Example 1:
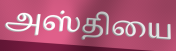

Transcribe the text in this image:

அஸ்தியை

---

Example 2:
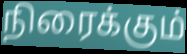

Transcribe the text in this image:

நிரைக்கும்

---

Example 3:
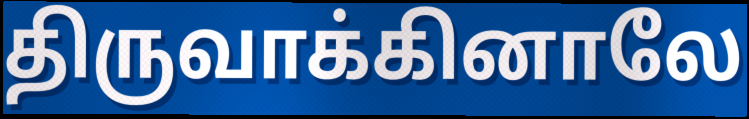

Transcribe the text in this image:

திருவாக்கினாலே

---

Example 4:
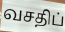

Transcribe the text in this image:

வசதிப்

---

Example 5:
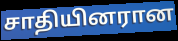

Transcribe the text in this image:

சாதியினரான